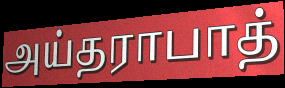
அய்தராபாத்